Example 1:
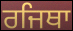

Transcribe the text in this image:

ਰਜਿਥਾ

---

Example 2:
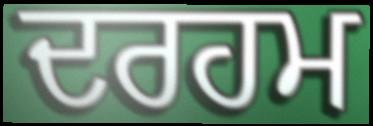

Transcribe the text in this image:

ਦਰਹਮ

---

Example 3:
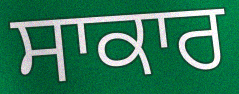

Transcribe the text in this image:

ਸਾਕਾਰ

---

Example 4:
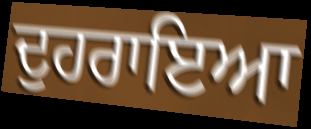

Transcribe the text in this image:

ਦੁਹਰਾਇਆ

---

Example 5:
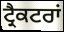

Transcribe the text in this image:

ਟ੍ਰੈਕਟਰਾਂ